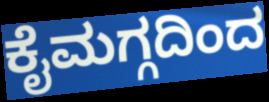
ಕೈಮಗ್ಗದಿಂದ